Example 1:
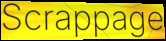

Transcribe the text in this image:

Scrappage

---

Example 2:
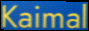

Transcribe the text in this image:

Kaimal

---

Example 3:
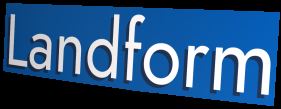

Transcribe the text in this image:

Landform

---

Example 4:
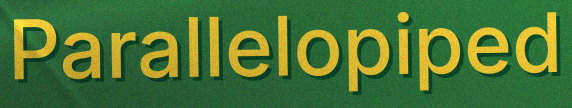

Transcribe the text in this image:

Parallelopiped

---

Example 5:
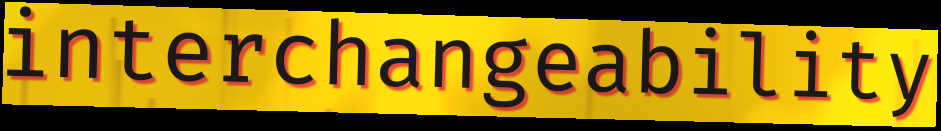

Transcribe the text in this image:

interchangeability